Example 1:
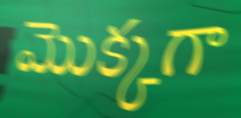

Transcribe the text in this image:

మొక్కగా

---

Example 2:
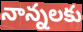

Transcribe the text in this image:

నాన్నలకు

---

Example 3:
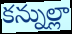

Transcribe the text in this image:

కన్నుల్లా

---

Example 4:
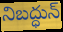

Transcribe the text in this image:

నిబద్ధున్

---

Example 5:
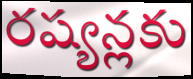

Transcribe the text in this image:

రష్యన్లకు